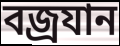
বজ্রযান